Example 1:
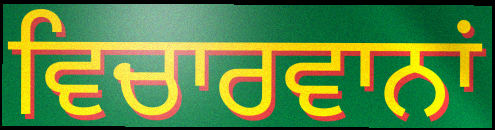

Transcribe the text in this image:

ਵਿਚਾਰਵਾਨਾਂ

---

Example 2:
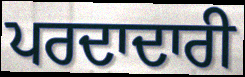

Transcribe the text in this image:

ਪਰਦਾਦਾਰੀ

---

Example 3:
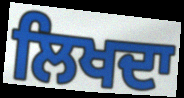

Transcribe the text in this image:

ਲਿਖਦਾ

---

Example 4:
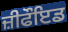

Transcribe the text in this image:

ਜ਼ੀਫੌਇਡ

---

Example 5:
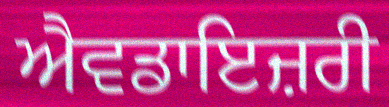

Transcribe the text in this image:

ਐਵਡਾਇਜ਼ਰੀ